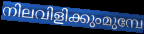
നിലവിളിക്കുംമുമ്പേ